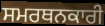
ਸਮਰਥਨਕਾਰੀ